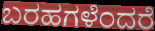
ಬರಹಗಳೆಂದರೆ